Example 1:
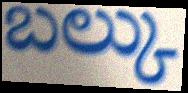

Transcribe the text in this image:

బల్కు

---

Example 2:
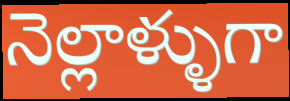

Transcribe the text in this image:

నెల్లాళ్ళుగా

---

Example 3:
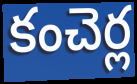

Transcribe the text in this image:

కంచెర్ల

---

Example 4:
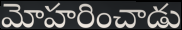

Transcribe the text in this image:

మోహరించాడు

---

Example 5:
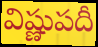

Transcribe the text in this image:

విష్ణుపదీ